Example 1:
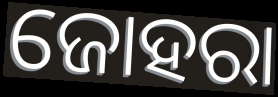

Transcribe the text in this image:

ଜୋହରା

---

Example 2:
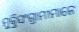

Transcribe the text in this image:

ମୁକ୍ତିସଂଗ୍ରାମୀମାନେ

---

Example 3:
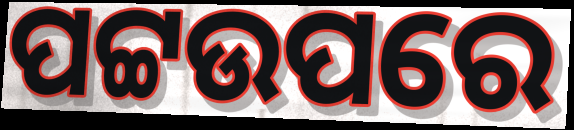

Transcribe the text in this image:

ପଟ୍ଟଉପରେ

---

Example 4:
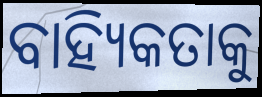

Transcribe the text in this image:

ବାହ୍ୟିକତାକୁ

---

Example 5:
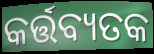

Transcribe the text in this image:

କର୍ତ୍ତବ୍ୟତକ